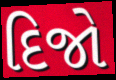
દિજો